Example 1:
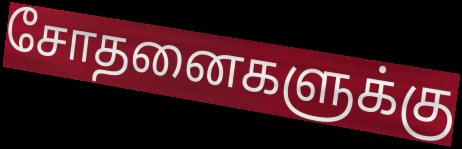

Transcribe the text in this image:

சோதனைகளுக்கு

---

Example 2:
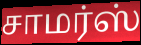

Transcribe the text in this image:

சாமர்ஸ்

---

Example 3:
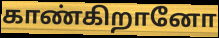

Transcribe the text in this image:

காண்கிறானோ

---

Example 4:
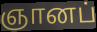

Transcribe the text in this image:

ஞானப்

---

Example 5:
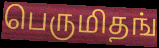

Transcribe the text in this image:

பெருமிதங்